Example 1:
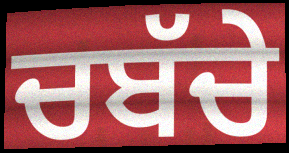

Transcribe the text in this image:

ਚਬੱਚੇ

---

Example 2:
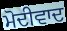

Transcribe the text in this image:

ਮੋਦੀਵਾਦ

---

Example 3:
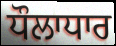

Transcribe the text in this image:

ਧੌਲਾਧਾਰ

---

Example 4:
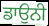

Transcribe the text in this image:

ਡਾਉਨੀ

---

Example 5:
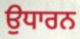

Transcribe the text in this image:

ਉਧਾਰਨ